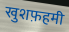
खुशफ़हमी